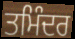
ਤਮਿੰਦਰ